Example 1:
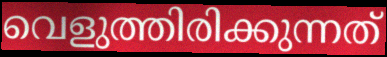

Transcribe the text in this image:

വെളുത്തിരിക്കുന്നത്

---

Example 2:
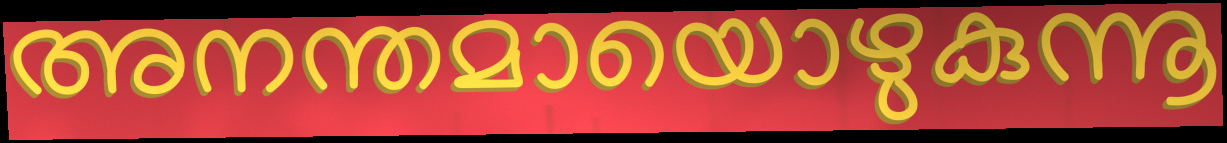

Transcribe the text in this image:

അനന്തമായൊഴുകുന്നൂ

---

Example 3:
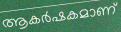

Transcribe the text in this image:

ആകർഷകമാണ്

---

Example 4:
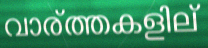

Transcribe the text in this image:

വാര്ത്തകളില്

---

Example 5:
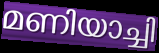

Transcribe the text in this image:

മണിയാച്ചി